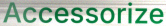
Accessorize